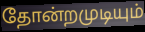
தோன்றமுடியும்